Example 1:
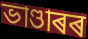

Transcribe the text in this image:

ভাণ্ডাৰৰ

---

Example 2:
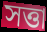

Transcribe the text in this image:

সত্তা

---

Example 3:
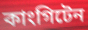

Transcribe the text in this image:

কাংগিটেন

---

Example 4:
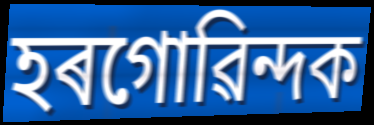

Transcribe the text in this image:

হৰগোৱিন্দক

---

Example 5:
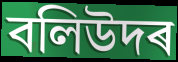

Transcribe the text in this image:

বলিউদৰ